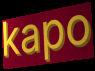
kapo